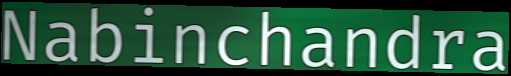
Nabinchandra